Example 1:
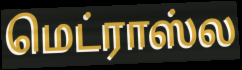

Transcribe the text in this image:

மெட்ராஸ்ல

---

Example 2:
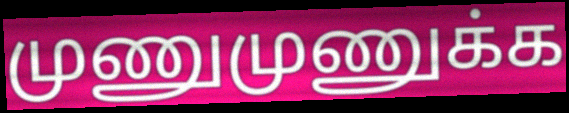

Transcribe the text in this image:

முணுமுணுக்க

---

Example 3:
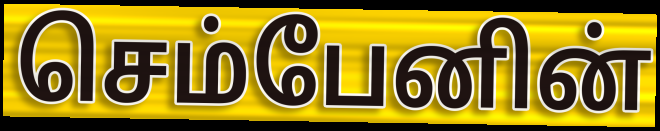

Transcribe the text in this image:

செம்பேனின்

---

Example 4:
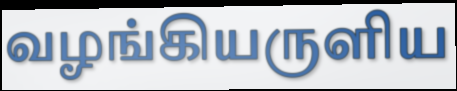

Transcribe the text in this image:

வழங்கியருளிய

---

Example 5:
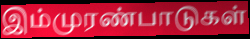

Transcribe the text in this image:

இம்முரண்பாடுகள்